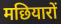
मछियारों